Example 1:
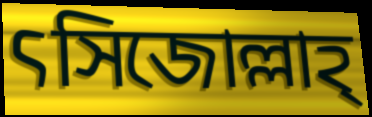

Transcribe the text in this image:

ৎসিজোল্লাহ্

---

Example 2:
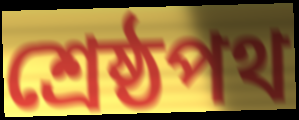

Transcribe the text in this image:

শ্রেষ্ঠপথ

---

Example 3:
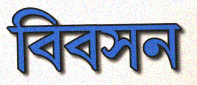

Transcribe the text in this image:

বিবসন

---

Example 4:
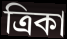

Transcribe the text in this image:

ত্রিকা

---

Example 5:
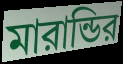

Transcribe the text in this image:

মারান্ডির